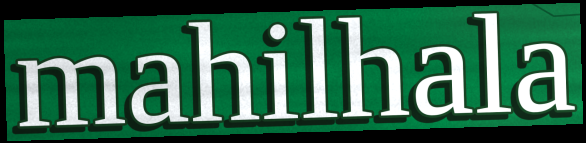
mahilhala